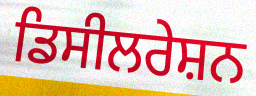
ਡਿਸੀਲਰੇਸ਼ਨ